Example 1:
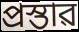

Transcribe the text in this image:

প্ৰস্তাৱ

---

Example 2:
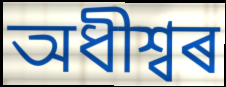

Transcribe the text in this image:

অধীশ্বৰ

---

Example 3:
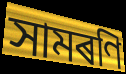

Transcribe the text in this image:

সামৰণি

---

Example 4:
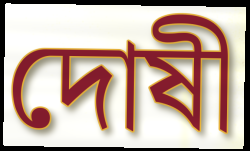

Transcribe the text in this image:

দোষী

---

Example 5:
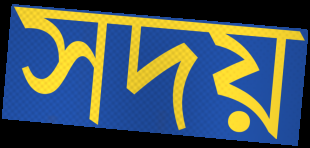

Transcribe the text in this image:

সদয়